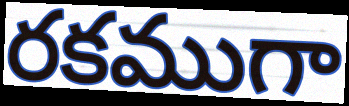
రకముగా